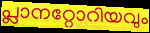
പ്ലാനറ്റോറിയവും